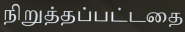
நிறுத்தப்பட்டதை